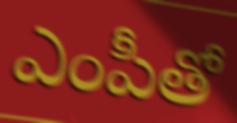
ఎంపీతో